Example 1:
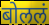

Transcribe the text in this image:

बोललं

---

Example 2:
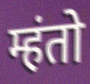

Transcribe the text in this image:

म्हंतो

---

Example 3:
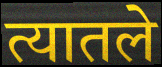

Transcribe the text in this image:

त्यातले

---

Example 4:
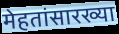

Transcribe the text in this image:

मेहतांसारख्या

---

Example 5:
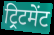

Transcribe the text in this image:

ट्रिटमेंट